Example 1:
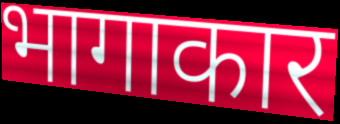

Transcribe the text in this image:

भागाकार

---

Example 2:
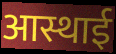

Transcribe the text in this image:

आस्थाई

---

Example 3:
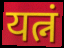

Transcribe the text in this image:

यत्नं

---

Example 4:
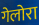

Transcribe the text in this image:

गेलोरा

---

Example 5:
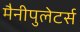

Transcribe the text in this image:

मैनीपुलेटर्स